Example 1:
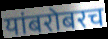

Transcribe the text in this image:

यांबरोबरच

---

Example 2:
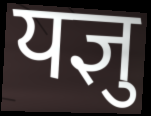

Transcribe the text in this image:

यज्ञु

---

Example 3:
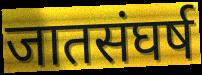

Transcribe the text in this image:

जातसंघर्ष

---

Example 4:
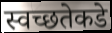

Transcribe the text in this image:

स्वच्छतेकडे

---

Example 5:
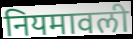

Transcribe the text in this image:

नियमावली